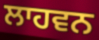
ਲਾਹਵਨ